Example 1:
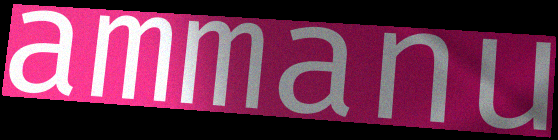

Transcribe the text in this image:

ammanu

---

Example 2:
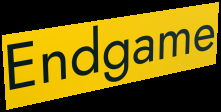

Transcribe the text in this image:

Endgame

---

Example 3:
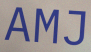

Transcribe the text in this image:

AMJ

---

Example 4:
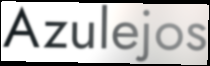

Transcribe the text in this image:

Azulejos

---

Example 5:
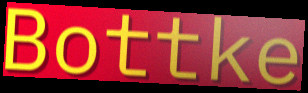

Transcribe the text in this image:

Bottke